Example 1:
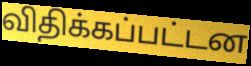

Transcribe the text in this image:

விதிக்கப்பட்டன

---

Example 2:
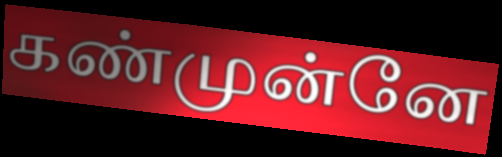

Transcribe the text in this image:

கண்முன்னே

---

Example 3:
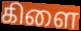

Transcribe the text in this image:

கிளை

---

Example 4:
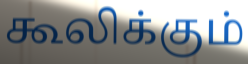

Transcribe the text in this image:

கூலிக்கும்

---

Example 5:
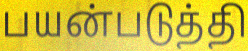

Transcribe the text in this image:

பயன்படுத்தி